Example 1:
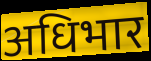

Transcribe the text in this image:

अधिभार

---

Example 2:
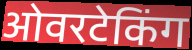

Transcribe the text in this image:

ओवरटेकिंग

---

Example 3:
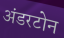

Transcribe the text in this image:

अंडरटोन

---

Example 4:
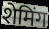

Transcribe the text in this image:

शेमिंग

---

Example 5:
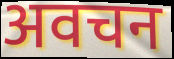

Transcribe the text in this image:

अवचन